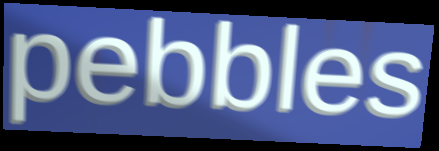
pebbles